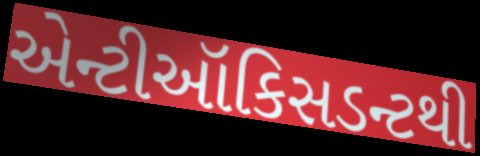
એન્ટીઑકિસડન્ટથી